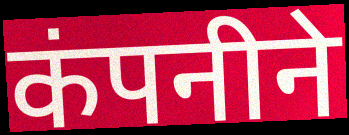
कंपनीने